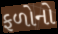
ફળોનો